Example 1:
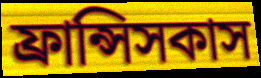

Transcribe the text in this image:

ফ্রান্সিসকাস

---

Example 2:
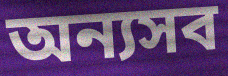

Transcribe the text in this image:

অন্যসব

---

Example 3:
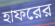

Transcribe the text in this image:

হাফরের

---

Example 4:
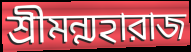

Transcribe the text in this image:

শ্রীমন্মহারাজ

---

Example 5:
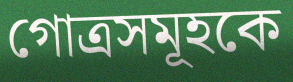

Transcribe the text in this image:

গোত্রসমূহকে